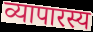
व्यापारस्य